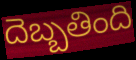
దెబ్బతింది